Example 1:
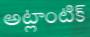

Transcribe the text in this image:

అట్లాంటిక్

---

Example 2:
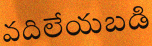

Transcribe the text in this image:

వదిలేయబడి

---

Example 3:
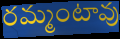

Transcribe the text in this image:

రమ్మంటావు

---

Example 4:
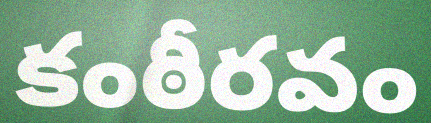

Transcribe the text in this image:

కంఠీరవం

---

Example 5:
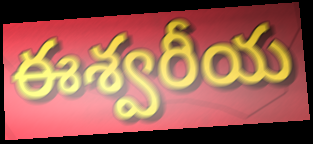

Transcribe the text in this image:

ఈశ్వరీయ